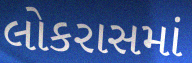
લોકરાસમાં